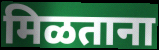
मिळताना